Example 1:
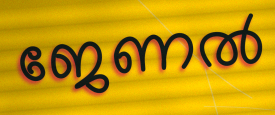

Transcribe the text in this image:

ജേണൽ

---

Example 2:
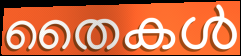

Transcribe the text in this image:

തൈകൾ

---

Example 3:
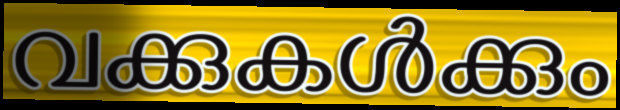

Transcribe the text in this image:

വക്കുകൾക്കും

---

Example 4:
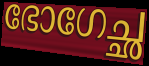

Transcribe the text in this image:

ഭോഗേച്ഛ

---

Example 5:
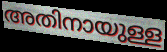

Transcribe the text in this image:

അതിനായുള്ള